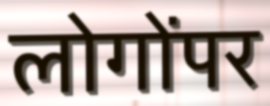
लोगोंपर